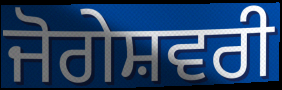
ਜੋਗੇਸ਼ਵਰੀ